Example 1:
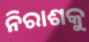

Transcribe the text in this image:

ନିରାଶକୁ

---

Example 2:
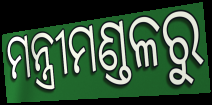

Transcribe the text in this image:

ମନ୍ତ୍ରୀମଣ୍ଡଳରୁ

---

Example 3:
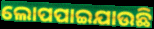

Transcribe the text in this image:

ଲୋପପାଇଯାଉଛି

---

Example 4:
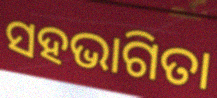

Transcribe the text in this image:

ସହଭାଗିତା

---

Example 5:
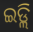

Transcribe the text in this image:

ଇଡ୍ଲି